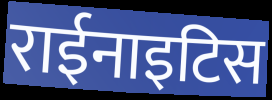
राईनाइटिस